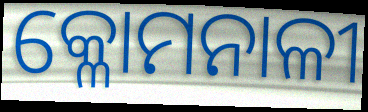
କ୍ଳୋମନାଳୀ